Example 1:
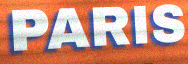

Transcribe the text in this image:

PARIS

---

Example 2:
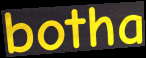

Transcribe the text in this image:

botha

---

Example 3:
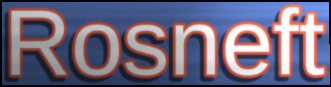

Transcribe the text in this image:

Rosneft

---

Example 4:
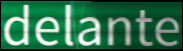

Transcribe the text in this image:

delante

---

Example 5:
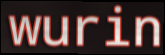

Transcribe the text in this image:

wurin